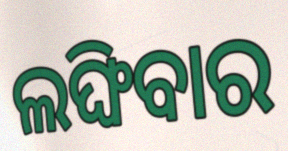
ଲଙ୍ଘିବାର